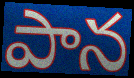
పాన